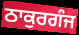
ਠਾਕੁਰਗੰਜ